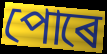
পোৰে